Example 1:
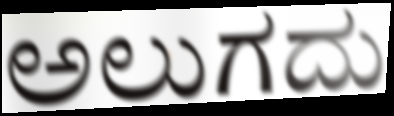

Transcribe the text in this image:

ಅಲುಗದು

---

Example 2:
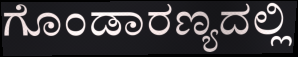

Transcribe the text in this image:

ಗೊಂಡಾರಣ್ಯದಲ್ಲಿ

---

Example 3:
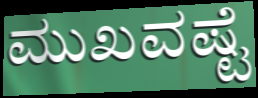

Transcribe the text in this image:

ಮುಖವಷ್ಟೆ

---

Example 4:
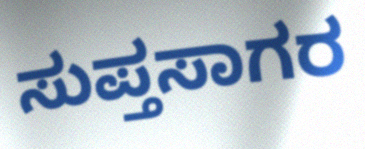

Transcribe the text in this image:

ಸುಪ್ತಸಾಗರ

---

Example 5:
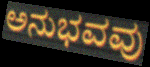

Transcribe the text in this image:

ಅನುಭವವು